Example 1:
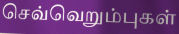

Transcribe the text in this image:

செவ்வெறும்புகள்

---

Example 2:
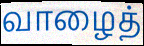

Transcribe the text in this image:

வாழைத்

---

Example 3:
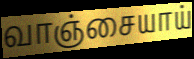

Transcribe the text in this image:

வாஞ்சையாய்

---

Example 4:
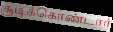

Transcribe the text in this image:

சூடிக்கொண்டார்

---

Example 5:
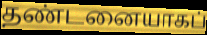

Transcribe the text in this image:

தண்டனையாகப்